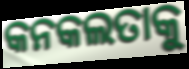
କନକଲତାକୁ